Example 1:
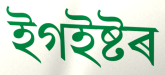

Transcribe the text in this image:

ইগইষ্টৰ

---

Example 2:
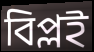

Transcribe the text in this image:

বিপ্লই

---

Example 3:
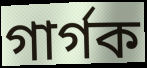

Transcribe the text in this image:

গাৰ্গক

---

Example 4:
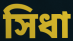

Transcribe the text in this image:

সিধা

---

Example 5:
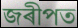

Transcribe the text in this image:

জৰীপত